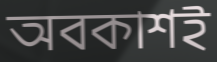
অবকাশই